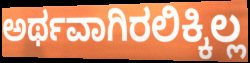
ಅರ್ಥವಾಗಿರಲಿಕ್ಕಿಲ್ಲ